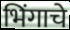
भिंगाचे